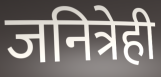
जनित्रेही